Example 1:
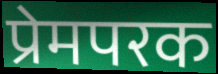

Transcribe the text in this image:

प्रेमपरक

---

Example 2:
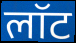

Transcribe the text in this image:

लॉट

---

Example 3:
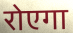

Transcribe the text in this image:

रोएगा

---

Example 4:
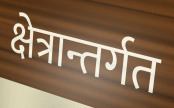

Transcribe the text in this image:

क्षेत्रान्तर्गत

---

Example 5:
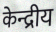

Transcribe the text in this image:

केन्‍द्रीय